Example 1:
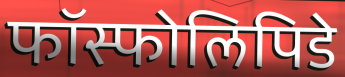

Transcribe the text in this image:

फॉस्फोलिपिडे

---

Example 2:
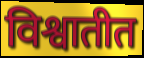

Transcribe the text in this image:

विश्वातीत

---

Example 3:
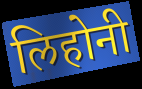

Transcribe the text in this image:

लिहोनी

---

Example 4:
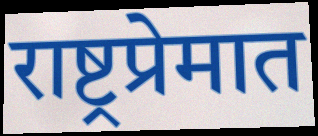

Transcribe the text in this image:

राष्ट्रप्रेमात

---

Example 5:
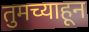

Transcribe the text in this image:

तुमच्याहून